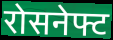
रोसनेफ्ट